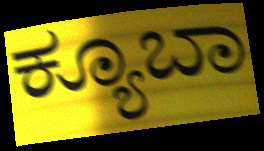
ಕ್ಯೂಬಾ